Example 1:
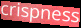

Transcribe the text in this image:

crispness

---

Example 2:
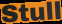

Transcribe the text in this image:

Stull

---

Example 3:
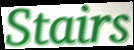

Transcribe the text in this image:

Stairs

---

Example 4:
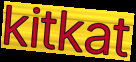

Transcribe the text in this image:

kitkat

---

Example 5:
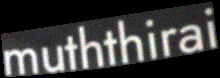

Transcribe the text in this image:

muththirai